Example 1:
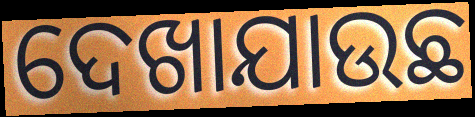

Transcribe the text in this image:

ଦେଖାଯାଉଛ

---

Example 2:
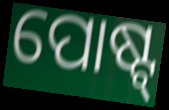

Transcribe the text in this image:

ପୋଷ୍ଟ୍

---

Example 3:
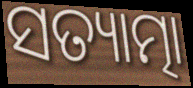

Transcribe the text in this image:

ସତ୍ୟାତ୍ମା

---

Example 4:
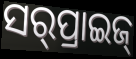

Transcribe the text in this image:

ସର୍‌ପ୍ରାଇଜ୍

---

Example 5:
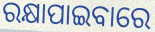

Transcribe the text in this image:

ରକ୍ଷାପାଇବାରେ